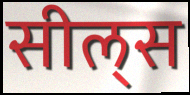
सील्स